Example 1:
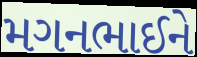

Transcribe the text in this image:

મગનભાઈને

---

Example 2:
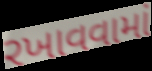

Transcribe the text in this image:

રખાવવામાં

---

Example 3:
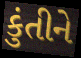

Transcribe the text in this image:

કુંતીને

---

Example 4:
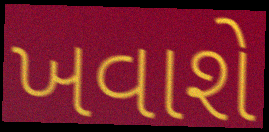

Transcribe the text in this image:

ખવાશે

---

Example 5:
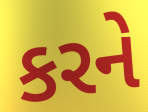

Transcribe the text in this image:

કરને